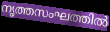
നൃത്തസംഘത്തിൽ